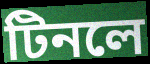
টিনলে